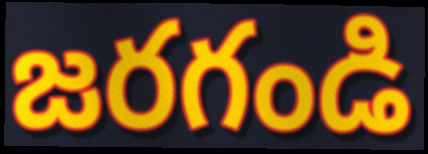
జరగండి